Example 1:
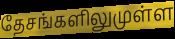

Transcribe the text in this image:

தேசங்களிலுமுள்ள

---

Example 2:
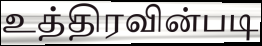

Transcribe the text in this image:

உத்திரவின்படி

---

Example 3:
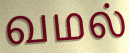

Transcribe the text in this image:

வமல்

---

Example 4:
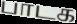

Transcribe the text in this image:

பாடக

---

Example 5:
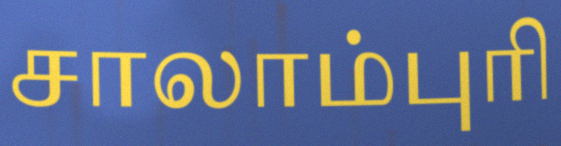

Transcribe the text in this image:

சாலாம்புரி